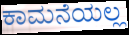
ಕಾಮನೆಯಲ್ಲ